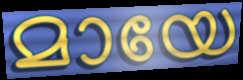
മായേ